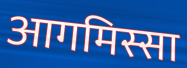
आगमिस्सा